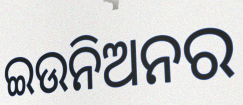
ଇଉନିଅନର